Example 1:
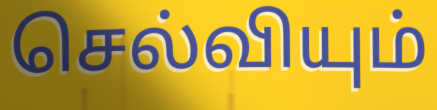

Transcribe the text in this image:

செல்வியும்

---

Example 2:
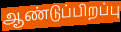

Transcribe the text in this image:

ஆண்டுப்பிறப்பு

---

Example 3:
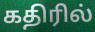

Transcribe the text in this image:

கதிரில்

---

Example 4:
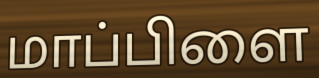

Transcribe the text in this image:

மாப்பிளை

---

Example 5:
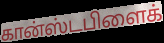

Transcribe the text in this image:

கான்ஸ்டபிளைக்